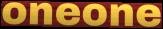
oneone